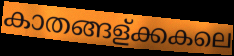
കാതങ്ങള്ക്കകലെ